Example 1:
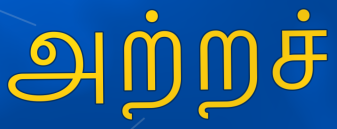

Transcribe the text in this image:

அற்றச்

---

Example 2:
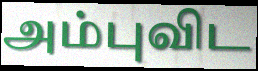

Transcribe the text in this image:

அம்புவிட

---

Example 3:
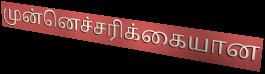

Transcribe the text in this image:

முன்னெச்சரிக்கையான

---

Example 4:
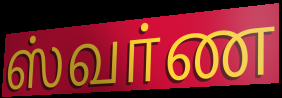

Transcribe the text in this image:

ஸ்வர்ண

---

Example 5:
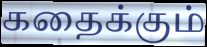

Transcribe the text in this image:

கதைக்கும்